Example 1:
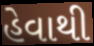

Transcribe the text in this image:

હેવાથી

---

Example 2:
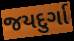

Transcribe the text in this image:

જયદુર્ગા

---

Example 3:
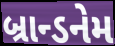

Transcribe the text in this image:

બ્રાન્ડનેમ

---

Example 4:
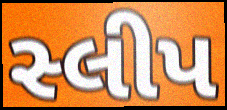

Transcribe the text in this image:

સ્લીપ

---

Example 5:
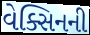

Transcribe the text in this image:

વેક્સિનની